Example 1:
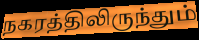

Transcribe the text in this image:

நகரத்திலிருந்தும்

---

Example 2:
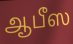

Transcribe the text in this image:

ஆபீஸ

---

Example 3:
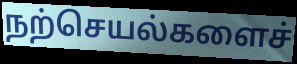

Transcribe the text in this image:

நற்செயல்களைச்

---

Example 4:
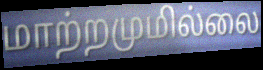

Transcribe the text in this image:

மாற்றமுமில்லை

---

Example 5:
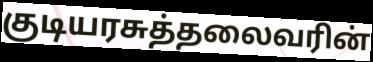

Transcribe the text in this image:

குடியரசுத்தலைவரின்